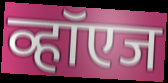
व्हॉएज